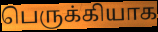
பெருக்கியாக